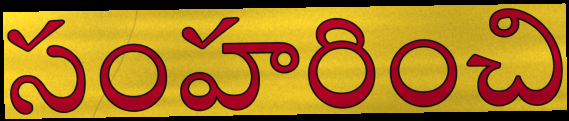
సంహరించి